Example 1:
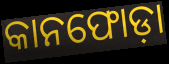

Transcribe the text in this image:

କାନଫୋଡ଼ା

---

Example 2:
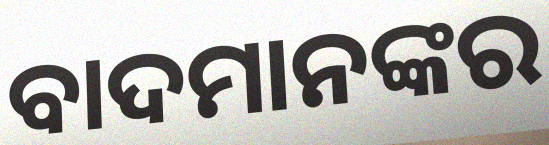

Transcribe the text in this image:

ବାଦମାନଙ୍କର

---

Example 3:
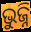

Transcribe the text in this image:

ଭୁଜ୍ନି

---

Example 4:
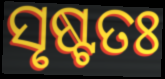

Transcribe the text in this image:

ସୃଷ୍ଟତଃ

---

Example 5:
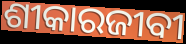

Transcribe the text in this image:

ଶୀକାରଜୀବୀ